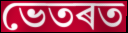
ভেতৰত